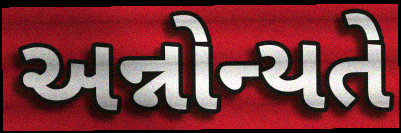
અન્નોન્યતે